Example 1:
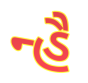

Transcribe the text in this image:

ન્હૈ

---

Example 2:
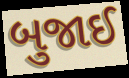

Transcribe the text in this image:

બુજાઈ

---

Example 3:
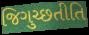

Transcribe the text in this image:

જિગુચ્છતીતિ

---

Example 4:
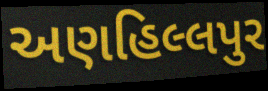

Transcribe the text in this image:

અણહિલ્લપુર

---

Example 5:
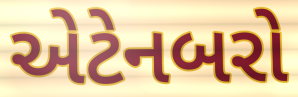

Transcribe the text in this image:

એટેનબરો